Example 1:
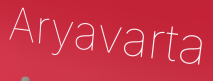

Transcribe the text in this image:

Aryavarta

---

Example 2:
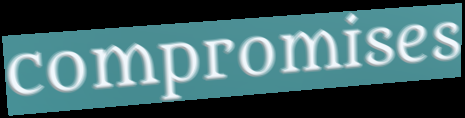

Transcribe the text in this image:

compromises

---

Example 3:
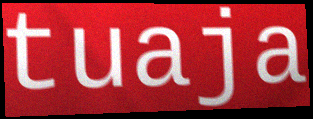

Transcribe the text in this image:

tuaja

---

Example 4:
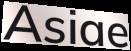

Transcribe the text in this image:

Asiae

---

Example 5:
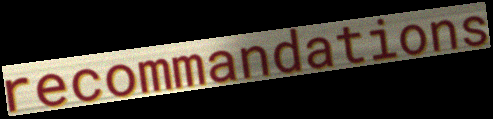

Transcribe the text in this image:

recommandations